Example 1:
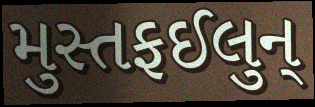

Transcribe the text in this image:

મુસ્તફઈલુન્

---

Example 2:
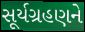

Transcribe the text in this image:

સૂર્યગ્રહણને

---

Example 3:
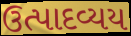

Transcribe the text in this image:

ઉત્પાદવ્યય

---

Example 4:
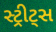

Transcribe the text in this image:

સ્ટ્રીટ્સ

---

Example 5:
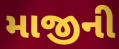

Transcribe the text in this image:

માજીની